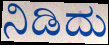
ನಿಡಿದು